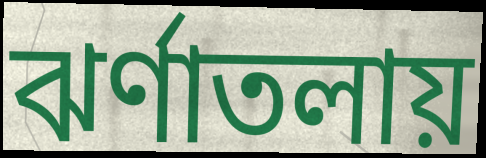
ঝর্ণাতলায়